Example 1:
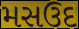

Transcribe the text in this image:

મસઉદ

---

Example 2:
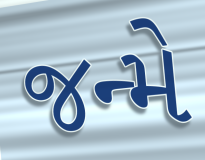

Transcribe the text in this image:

જન્મે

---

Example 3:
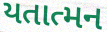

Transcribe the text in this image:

યતાત્મન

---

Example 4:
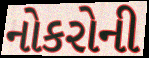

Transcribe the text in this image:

નોકરોની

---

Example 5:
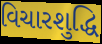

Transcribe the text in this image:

વિચારશુદ્ધિ